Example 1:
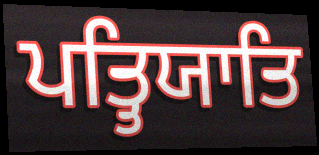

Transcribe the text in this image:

ਪਤ੍ਤਿਯਾਤਿ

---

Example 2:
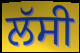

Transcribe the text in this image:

ਲੱਸੀ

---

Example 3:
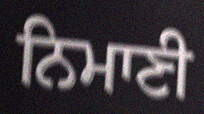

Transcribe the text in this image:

ਨਿਮਾਣੀ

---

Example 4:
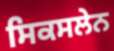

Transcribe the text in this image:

ਸਿਕਸਲੇਨ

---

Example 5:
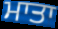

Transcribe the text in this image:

ਮਾਤਾ